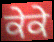
ਕੇਕੇ